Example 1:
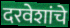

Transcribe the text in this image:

दरवेशांचे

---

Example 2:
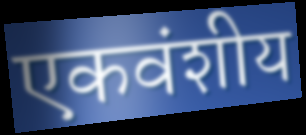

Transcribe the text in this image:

एकवंशीय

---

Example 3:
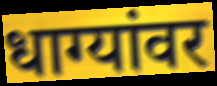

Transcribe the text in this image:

धाग्यांवर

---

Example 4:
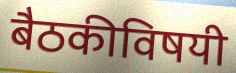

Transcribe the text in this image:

बैठकीविषयी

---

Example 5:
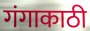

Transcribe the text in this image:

गंगाकाठी